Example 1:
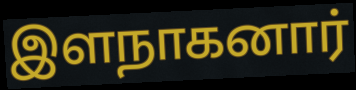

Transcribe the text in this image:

இளநாகனார்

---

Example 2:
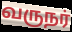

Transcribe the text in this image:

வருநர்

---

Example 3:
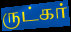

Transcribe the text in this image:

ருட்கர்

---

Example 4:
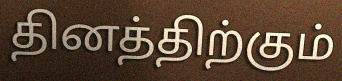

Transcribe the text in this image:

தினத்திற்கும்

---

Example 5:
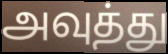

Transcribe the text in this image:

அவுத்து